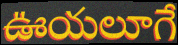
ఊయలూగే